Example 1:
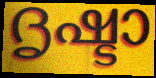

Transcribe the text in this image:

ദൃഷ്ടാ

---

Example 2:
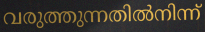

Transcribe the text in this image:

വരുത്തുന്നതിൽനിന്ന്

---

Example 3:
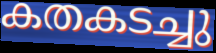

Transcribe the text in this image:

കതകടച്ചു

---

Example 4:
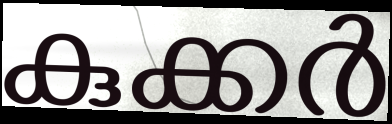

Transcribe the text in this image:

കുക്കർ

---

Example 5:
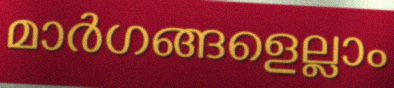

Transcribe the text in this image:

മാർഗങ്ങളെല്ലാം